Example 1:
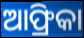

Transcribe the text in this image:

ଆଫ୍ରିକା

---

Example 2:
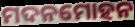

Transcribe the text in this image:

ମଦନମୋହନ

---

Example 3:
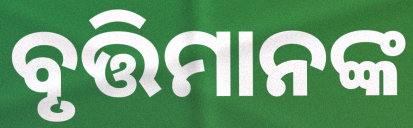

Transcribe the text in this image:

ବୃତ୍ତିମାନଙ୍କ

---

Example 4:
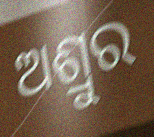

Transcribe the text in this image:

ଅଶ୍ରୁର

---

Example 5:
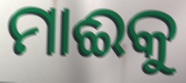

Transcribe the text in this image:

ମାଈକୁ